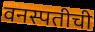
वनस्पतीची